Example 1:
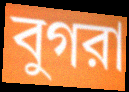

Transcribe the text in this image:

বুগরা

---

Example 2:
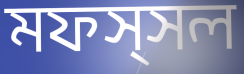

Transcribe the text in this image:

মফস্‌সল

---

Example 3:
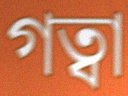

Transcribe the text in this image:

গত্বা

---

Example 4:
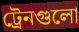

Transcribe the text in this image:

ট্রেনগুলো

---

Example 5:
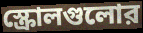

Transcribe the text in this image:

স্ক্রোলগুলোর